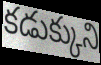
కడుక్కుని